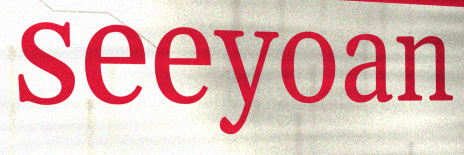
seeyoan